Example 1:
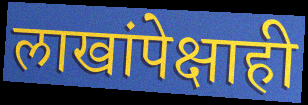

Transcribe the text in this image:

लाखांपेक्षाही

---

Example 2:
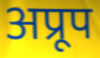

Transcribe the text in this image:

अप्रूप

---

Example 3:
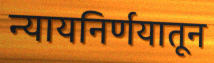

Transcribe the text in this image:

न्यायनिर्णयातून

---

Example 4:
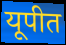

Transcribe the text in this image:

यूपीत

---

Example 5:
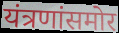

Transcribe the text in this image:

यंत्रणांसमोर